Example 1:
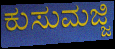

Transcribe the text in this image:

ಕುಸುಮಜ್ಜಿ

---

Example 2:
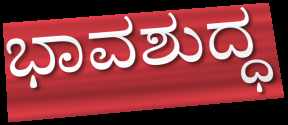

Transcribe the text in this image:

ಭಾವಶುದ್ಧ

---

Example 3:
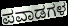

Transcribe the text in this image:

ಪವಾಡಗಳ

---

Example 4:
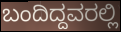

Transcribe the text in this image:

ಬಂದಿದ್ದವರಲ್ಲಿ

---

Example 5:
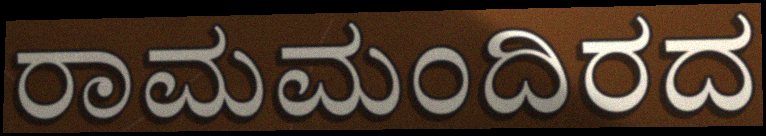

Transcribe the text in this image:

ರಾಮಮಂದಿರದ